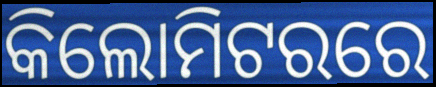
କିଲୋମିଟରରେ